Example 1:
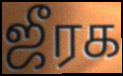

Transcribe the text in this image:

ஜீரக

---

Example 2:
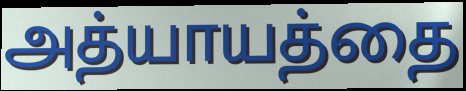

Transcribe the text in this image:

அத்யாயத்தை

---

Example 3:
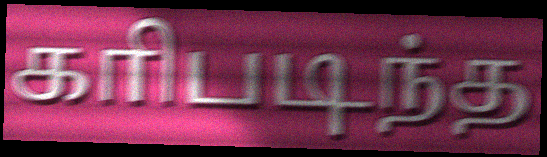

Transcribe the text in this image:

கரிபடிந்த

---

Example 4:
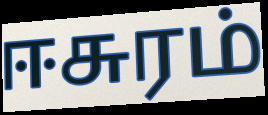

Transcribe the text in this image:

ஈசுரம்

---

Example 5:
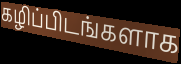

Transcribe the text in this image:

கழிப்பிடங்களாக